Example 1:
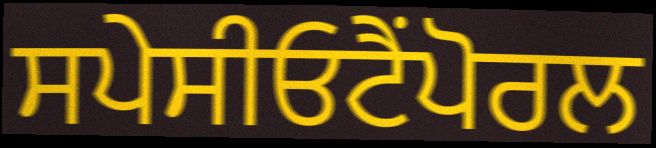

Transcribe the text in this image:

ਸਪੇਸੀਓਟੈਂਪੋਰਲ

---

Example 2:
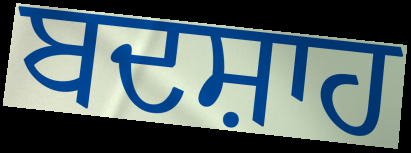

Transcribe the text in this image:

ਬਦਸ਼ਾਹ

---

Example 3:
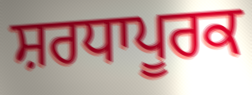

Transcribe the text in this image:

ਸ਼ਰਧਾਪੂਰਕ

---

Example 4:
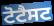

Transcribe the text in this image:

ਟੋਟੈਸਟ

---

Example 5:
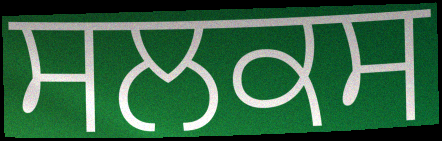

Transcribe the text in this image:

ਸਲਕਸ